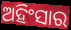
ଅହିଂସାର